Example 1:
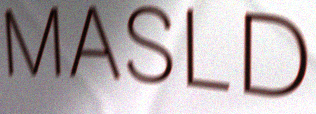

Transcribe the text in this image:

MASLD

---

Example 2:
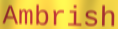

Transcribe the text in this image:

Ambrish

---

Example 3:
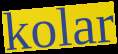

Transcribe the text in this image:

kolar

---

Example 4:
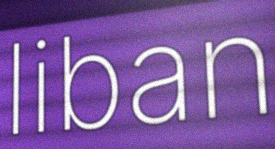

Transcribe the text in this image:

liban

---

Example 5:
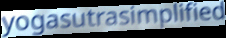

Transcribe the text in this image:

yogasutrasimplified